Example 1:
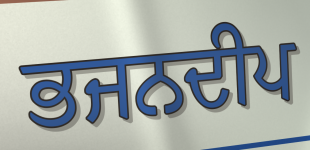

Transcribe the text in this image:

ਭਜਨਦੀਪ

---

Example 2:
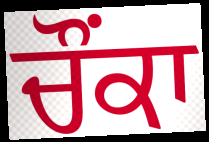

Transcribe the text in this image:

ਚੌੰਕਾ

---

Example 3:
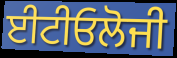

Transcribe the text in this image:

ਈਟੀਓਲੋਜੀ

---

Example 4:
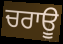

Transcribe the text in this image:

ਚਰਾਊ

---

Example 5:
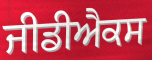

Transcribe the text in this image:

ਜੀਡੀਐਕਸ